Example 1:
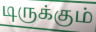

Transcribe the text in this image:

டிருக்கும்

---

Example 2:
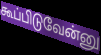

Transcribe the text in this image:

கூப்பிடுவேன்னு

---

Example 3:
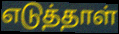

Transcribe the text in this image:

எடுத்தாள்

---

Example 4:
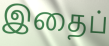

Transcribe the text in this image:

இதைப்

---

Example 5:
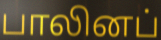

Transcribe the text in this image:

பாலினப்